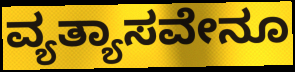
ವ್ಯತ್ಯಾಸವೇನೂ